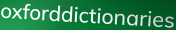
oxforddictionaries